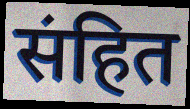
संहित